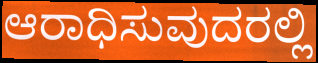
ಆರಾಧಿಸುವುದರಲ್ಲಿ